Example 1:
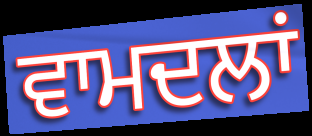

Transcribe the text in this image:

ਵਾਮਦਲਾਂ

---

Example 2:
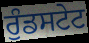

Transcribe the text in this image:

ਰੁੰਡਸਟੇਟ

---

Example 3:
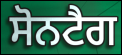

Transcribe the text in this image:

ਸੋਨਟੈਗ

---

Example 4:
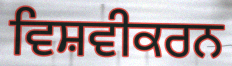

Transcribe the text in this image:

ਵਿਸ਼ਵੀਕਰਨ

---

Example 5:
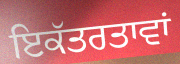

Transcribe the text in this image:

ਇਕੱਤਰਤਾਵਾਂ